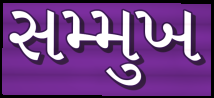
સમ્મુખ